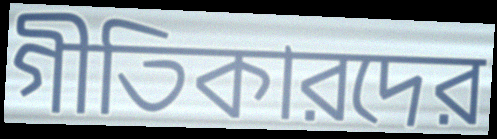
গীতিকারদের